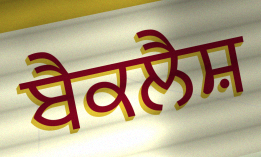
ਬੈਕਲੈਸ਼